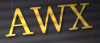
AWX